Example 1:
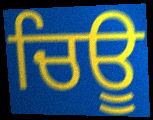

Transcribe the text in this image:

ਚਿਊ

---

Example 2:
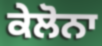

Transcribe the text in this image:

ਕੇਲੋਨਾ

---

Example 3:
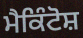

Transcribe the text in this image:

ਮੈਕਿੰਟੋਸ਼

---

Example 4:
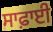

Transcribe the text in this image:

ਸਾਫ਼ਾਈ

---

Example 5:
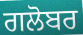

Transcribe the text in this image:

ਗਲੋਬਰ